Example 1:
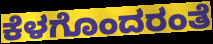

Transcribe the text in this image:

ಕೆಳಗೊಂದರಂತೆ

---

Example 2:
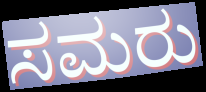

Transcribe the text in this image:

ಸಮರು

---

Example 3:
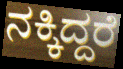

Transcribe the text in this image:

ನಕ್ಕಿದ್ದರೆ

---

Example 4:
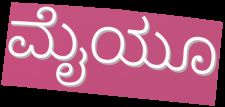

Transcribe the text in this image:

ಮೈಯೂ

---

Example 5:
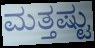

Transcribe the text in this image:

ಮತ್ತಷ್ಟು